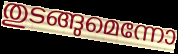
തുടങ്ങുമെന്നോ